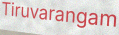
Tiruvarangam